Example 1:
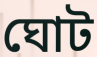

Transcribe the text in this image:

ঘোট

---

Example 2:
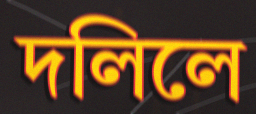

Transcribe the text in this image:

দলিলে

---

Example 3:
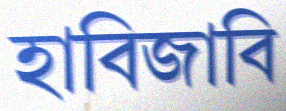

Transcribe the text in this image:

হাবিজাবি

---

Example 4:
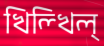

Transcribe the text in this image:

খিল্খিল্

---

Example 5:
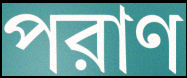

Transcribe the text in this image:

পরাণ